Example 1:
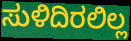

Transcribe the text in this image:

ಸುಳಿದಿರಲಿಲ್ಲ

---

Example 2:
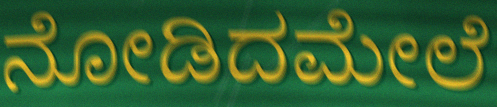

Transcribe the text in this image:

ನೋಡಿದಮೇಲೆ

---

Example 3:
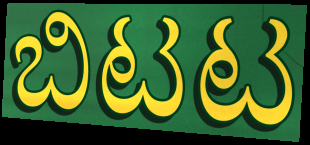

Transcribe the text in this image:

ಬಿಟಟ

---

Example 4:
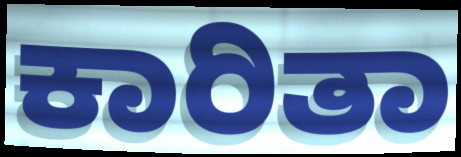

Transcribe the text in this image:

ಕಾರಿತಾ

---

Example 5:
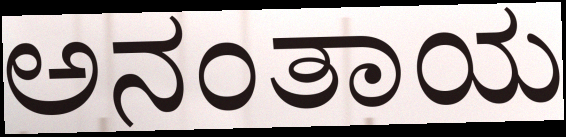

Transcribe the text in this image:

ಅನಂತಾಯ